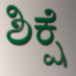
ಶಿಕ್ಷೆ